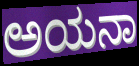
ಅಯನಾ